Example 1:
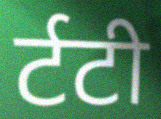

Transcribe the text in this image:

र्टटी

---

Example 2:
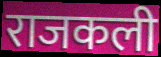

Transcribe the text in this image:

राजकली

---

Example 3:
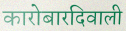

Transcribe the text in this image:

कारोबारदिवाली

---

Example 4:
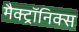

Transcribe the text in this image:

मैक्ट्रॉनिक्स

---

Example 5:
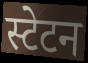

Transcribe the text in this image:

स्टेटन